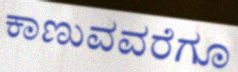
ಕಾಣುವವರೆಗೂ